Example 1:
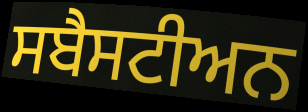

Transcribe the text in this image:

ਸਬੈਸਟੀਅਨ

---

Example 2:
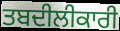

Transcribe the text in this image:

ਤਬਦੀਲੀਕਾਰੀ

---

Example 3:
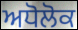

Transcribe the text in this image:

ਅਧੋਲੋਕ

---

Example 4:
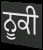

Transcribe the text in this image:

ਨੂਕੀ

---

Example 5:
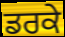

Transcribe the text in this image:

ਡਰਕੇ